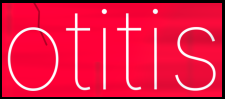
otitis